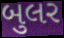
બુલર